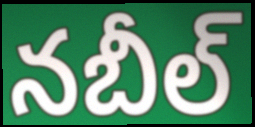
నబీల్